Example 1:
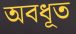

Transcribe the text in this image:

অবধূত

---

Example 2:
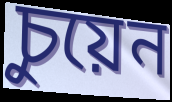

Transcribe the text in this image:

চুয়েন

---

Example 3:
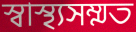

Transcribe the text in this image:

স্বাস্থ্যসম্মত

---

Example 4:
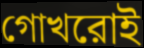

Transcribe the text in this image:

গোখরোই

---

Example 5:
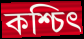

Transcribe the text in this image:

কশ্চিৎ